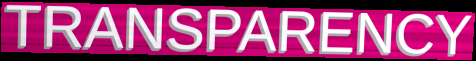
TRANSPARENCY